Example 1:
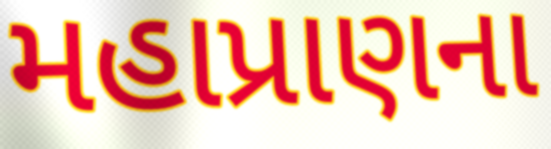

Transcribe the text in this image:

મહાપ્રાણના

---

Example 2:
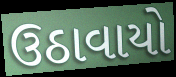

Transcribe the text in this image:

ઉઠાવાયો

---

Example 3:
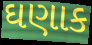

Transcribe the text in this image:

ઘણાક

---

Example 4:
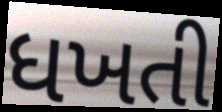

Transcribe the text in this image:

ધખતી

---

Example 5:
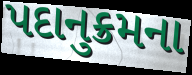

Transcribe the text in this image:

પદાનુક્રમના